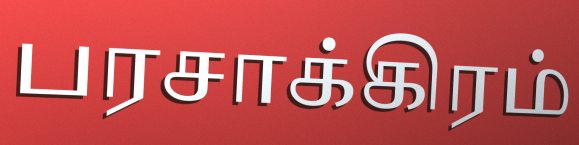
பரசாக்கிரம்